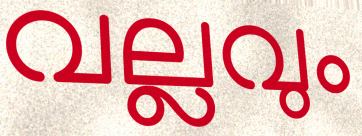
വല്ലവും